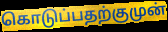
கொடுப்பதற்குமுன்